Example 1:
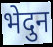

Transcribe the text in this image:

भेदुन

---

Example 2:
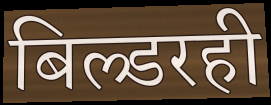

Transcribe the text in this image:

बिल्डरही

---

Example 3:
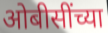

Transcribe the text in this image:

ओबीसींच्या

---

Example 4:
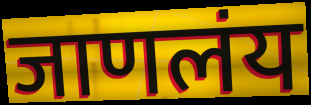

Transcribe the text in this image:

जाणलंय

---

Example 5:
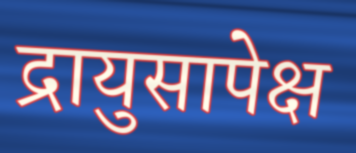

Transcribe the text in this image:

द्रायुसापेक्ष